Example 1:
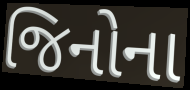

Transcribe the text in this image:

જિનોના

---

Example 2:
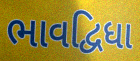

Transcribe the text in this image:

ભાવદ્વિધા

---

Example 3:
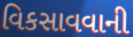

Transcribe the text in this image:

વિકસાવવાની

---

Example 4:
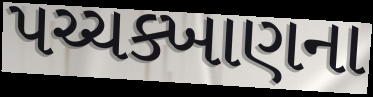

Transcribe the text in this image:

પચ્ચક્ખાણના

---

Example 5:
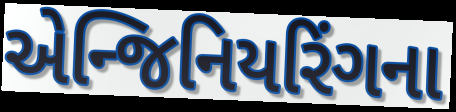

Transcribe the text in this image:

એન્જિનિયરિંગના